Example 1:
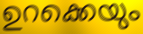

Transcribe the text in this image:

ഉറക്കെയും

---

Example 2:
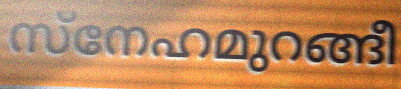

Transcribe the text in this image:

സ്നേഹമുറങ്ങീ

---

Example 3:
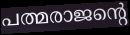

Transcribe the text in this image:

പത്മരാജന്റെ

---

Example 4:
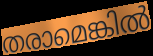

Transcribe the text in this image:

തരാമെങ്കിൽ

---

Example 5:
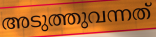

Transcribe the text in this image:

അടുത്തുവന്നത്